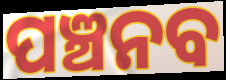
ପଞ୍ଚନବ